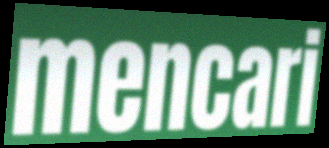
mencari